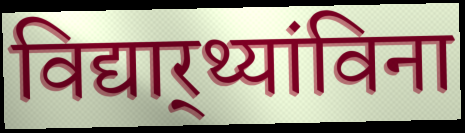
विद्यार्थ्यांविना